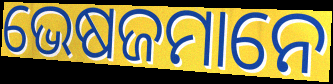
ଭେଷଜମାନେ